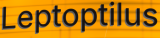
Leptoptilus